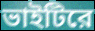
ভাইটিরে